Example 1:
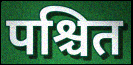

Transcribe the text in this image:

पश्चित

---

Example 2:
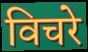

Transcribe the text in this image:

विचरे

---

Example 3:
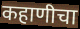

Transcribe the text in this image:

कहाणीचा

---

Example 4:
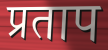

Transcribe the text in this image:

प्रताप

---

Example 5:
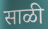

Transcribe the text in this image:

साळी